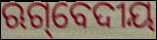
ଋଗ୍‌ବେଦୀୟ